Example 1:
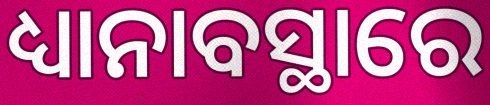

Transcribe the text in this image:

ଧ୍ୟାନାବସ୍ଥାରେ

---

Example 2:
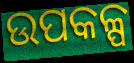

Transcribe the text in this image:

ଉପକଳ୍ପ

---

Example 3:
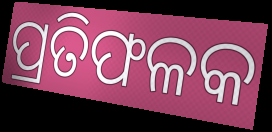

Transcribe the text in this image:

ପ୍ରତିଫଳକ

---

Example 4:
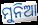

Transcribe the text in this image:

ମୁନିଆ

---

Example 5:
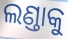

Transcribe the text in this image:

ଲଣ୍ଡାକୁ